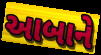
આબાને